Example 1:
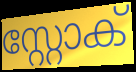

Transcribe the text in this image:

സ്റ്റോക്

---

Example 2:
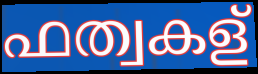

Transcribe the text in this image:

ഫത്വകള്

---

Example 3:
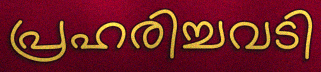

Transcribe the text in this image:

പ്രഹരിച്ചവടി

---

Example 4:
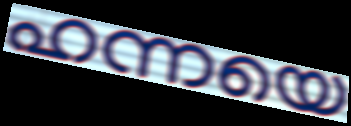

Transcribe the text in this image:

ഹന്നയെ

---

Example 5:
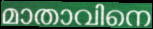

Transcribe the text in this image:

മാതാവിനെ